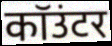
कॉउंटर